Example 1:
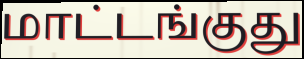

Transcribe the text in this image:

மாட்டங்குது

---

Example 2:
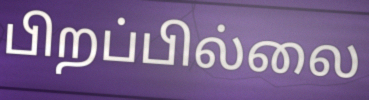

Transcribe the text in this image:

பிறப்பில்லை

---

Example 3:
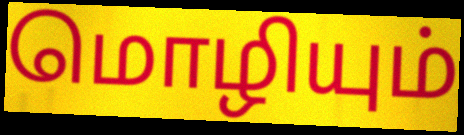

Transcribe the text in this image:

மொழியும்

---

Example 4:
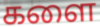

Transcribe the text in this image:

களை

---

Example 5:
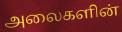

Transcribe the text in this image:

அலைகளின்